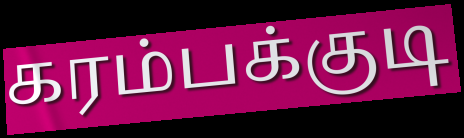
கரம்பக்குடி